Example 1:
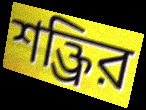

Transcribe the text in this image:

শক্ত্রির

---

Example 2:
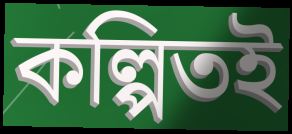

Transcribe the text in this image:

কল্পিতই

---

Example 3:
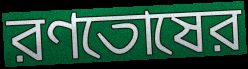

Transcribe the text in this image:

রণতোষের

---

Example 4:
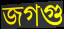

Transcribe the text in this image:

জগগু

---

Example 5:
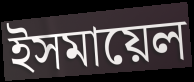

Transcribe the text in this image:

ইসমায়েল